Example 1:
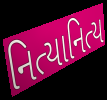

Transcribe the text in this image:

નિત્યાનિત્ય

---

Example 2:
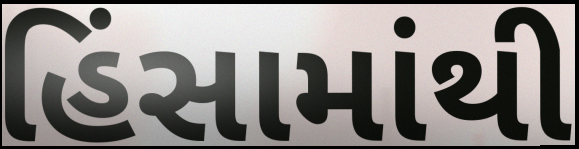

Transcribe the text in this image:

હિંસામાંથી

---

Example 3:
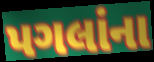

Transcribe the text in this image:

પગલાંના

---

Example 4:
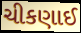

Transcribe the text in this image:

ચીકણાઈ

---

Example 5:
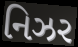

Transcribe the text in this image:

નિઝર